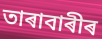
তাৰাবাৰীৰ